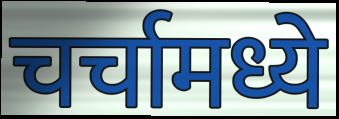
चर्चामध्ये